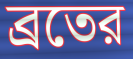
ব্রতের